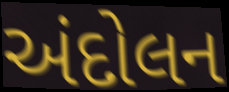
અંદોલન